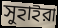
সুহাইরা